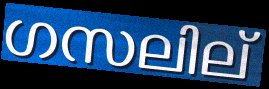
ഗസലില്